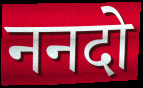
ननदो